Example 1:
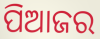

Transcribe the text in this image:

ପିଆଜର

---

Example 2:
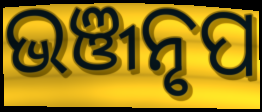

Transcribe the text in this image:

ଭଞ୍ଜନୃପ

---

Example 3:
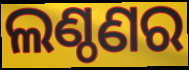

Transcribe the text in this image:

ଲଣ୍ଠଣର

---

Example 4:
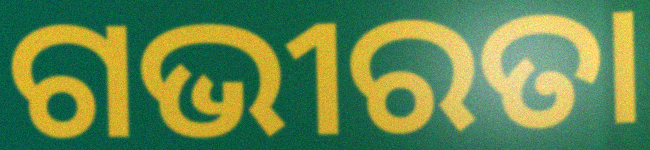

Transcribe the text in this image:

ଗଭୀରତା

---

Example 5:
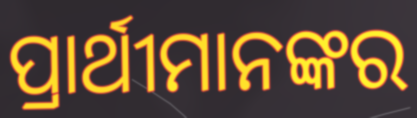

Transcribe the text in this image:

ପ୍ରାର୍ଥୀମାନଙ୍କର